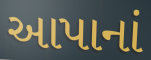
આપાનાં